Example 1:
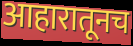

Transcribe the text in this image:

आहारातूनच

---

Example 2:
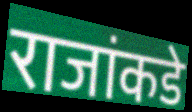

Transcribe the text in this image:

राजांकडे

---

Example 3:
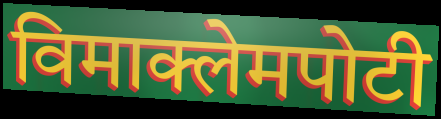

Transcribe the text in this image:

विमाक्लेमपोटी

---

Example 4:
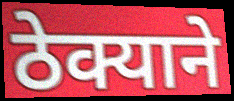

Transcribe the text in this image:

ठेक्याने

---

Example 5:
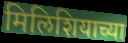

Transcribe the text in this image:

मिलिशियाच्या